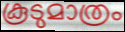
കൂടുമാത്രം